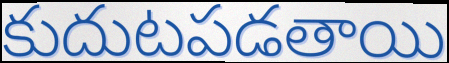
కుదుటపడతాయి